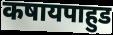
कषायपाहुड